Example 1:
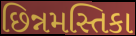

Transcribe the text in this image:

છિન્નમસ્તિકા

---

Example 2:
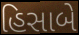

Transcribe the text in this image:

હિસાબે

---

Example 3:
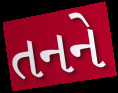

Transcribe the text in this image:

તનને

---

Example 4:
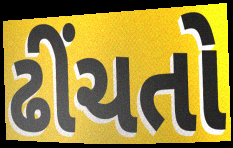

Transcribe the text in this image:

ઢીંચતો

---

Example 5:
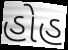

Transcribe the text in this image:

હોહ